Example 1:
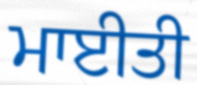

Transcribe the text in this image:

ਮਾਈਤੀ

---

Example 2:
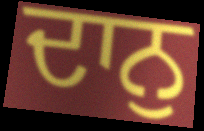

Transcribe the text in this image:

ਦਾਨੁ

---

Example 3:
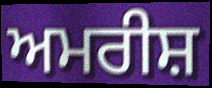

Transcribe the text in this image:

ਅਮਰੀਸ਼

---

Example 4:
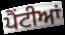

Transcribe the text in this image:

ਪੈਂਟੀਆਂ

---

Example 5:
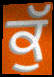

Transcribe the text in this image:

ਕੁੱ